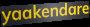
yaakendare